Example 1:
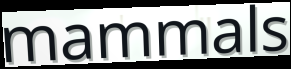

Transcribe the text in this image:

mammals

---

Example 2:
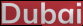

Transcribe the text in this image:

Dubai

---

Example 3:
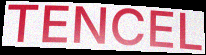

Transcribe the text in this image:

TENCEL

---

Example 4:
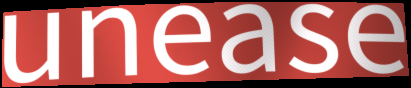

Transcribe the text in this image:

unease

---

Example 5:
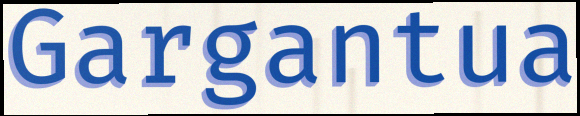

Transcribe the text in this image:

Gargantua